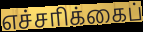
எச்சரிக்கைப்